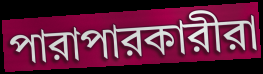
পারাপারকারীরা